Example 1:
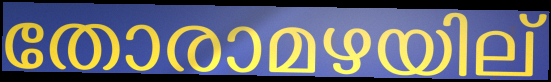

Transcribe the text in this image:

തോരാമഴയില്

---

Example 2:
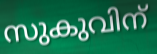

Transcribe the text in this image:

സുകുവിന്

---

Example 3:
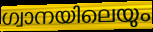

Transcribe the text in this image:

ഗ്വാനയിലെയും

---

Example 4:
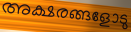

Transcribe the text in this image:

അക്ഷരങ്ങളോടു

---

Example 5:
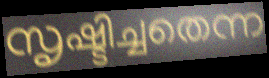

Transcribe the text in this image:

സൃഷ്ടിച്ചതെന്ന